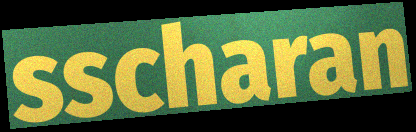
sscharan